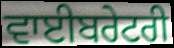
ਵਾਈਬਰੇਟਰੀ